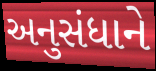
અનુસંધાને